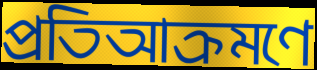
প্রতিআক্রমণে